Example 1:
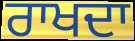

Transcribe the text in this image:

ਰਾਖਦਾ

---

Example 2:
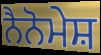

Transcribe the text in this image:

ਨੈਨੋਮੇਸ਼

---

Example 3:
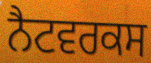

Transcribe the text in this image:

ਨੈਟਵਰਕਸ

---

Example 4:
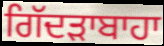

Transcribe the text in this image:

ਗਿੱਦੜਾਬਾਹਾ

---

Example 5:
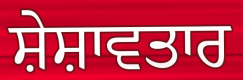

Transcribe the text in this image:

ਸ਼ੇਸ਼ਾਵਤਾਰ